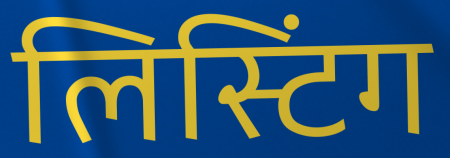
लिस्टिंग